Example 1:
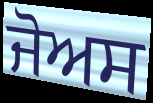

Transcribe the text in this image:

ਜੋਅਸ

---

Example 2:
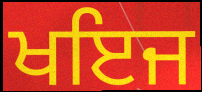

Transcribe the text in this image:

ਖਇਜ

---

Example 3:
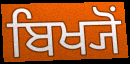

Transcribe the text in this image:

ਬਿਖ੍ਯੋਂ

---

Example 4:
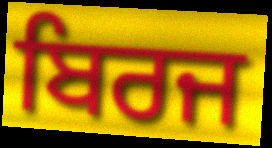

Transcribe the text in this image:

ਬਿਰਜ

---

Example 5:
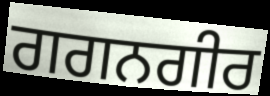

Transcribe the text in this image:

ਗਗਨਗੀਰ